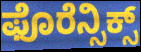
ಫೊರೆನ್ಸಿಕ್ಸ್